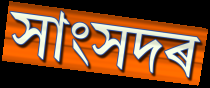
সাংসদৰ